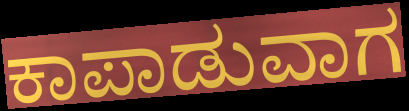
ಕಾಪಾಡುವಾಗ